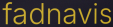
fadnavis